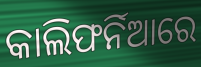
କାଲିଫର୍ନିଆରେ